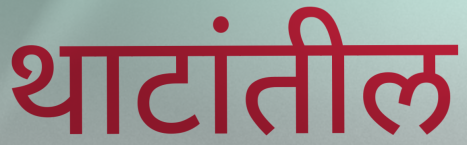
थाटांतील